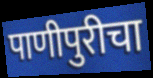
पाणीपुरीचा